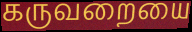
கருவறையை